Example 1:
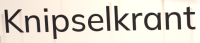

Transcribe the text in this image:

Knipselkrant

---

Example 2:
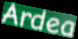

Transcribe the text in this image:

Ardea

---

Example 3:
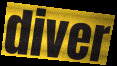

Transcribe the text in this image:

diver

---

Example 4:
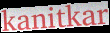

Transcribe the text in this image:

kanitkar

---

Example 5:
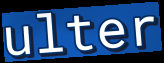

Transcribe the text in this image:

ulter